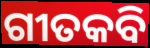
ଗୀତକବି